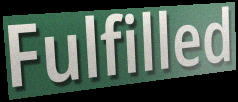
Fulfilled